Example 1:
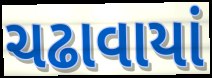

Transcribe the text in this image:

ચઢાવાયાં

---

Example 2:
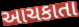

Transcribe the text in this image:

આચકાતા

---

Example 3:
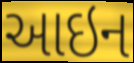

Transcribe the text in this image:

આઇન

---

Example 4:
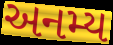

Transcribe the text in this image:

અનમ્ય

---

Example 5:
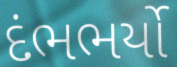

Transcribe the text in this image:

દંભભર્યો